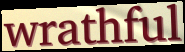
wrathful